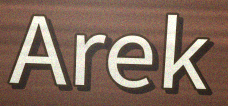
Arek